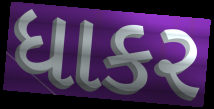
ધાકર